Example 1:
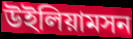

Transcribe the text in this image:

উইলিয়ামসন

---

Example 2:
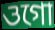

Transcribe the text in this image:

ওগো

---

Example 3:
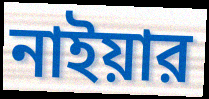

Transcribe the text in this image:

নাইয়ার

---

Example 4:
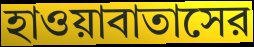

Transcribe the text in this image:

হাওয়াবাতাসের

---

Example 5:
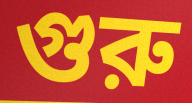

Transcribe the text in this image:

গুরু